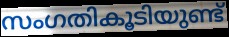
സംഗതികൂടിയുണ്ട്